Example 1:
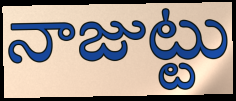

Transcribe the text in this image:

నాజుట్టు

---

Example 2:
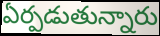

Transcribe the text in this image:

ఏర్పడుతున్నారు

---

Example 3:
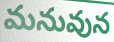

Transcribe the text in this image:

మనువున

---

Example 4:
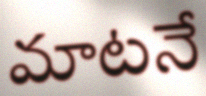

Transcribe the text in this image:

మాటనే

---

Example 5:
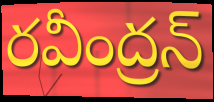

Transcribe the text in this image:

రవీంద్రన్